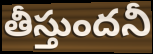
తీస్తుందనీ